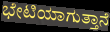
ಭೇಟಿಯಾಗುತ್ತಾನೆ